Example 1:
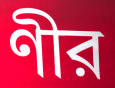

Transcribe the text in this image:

ণীর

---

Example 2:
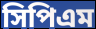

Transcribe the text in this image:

সিপিএম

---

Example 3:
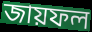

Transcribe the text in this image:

জায়ফল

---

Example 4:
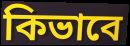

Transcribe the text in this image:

কিভাবে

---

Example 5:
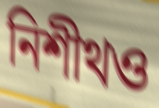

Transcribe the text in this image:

নিশীথও